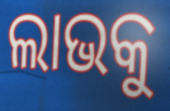
ଲାଭକୁ